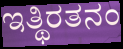
ಇತ್ಥಿರತನಂ